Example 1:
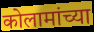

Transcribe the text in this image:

कोलामांच्या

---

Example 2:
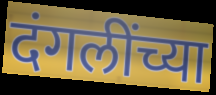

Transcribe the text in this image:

दंगलींच्या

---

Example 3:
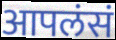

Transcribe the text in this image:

आपलंसं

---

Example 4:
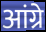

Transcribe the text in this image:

आंग्रे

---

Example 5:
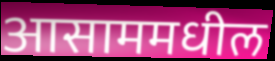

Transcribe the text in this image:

आसाममधील